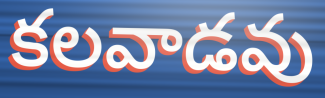
కలవాడవు